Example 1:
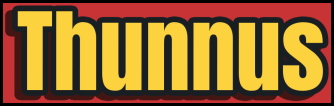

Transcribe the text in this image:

Thunnus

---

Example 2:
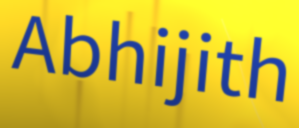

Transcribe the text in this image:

Abhijith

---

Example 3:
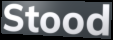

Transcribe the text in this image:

Stood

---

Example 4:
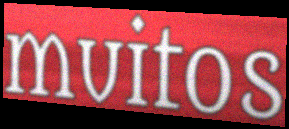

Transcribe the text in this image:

muitos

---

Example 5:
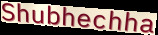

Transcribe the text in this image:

Shubhechha